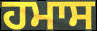
ਹਮਾਸ